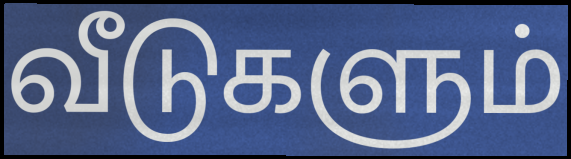
வீடுகளும்